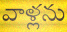
వాళ్లను